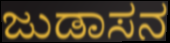
ಜುಡಾಸನ